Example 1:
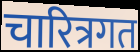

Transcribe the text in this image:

चारित्रगत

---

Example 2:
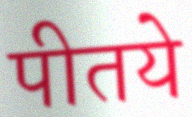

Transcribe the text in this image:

पीतये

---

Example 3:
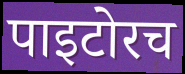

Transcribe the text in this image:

पाइटोरच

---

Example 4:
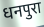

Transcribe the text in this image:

धनपुरा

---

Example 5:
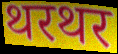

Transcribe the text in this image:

थरथर